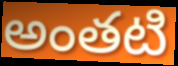
అంతటి